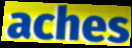
aches